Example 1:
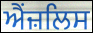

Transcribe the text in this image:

ਐਂਜ਼ਲਿਸ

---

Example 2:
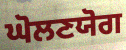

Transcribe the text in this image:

ਘੋਲਣਯੋਗ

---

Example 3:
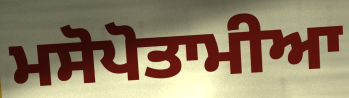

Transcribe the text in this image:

ਮਸੋਪੋਤਾਮੀਆ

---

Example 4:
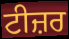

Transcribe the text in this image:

ਟੀਜ਼ਰ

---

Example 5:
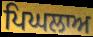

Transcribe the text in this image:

ਪਿਘਲਾਅ